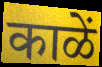
काळें